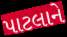
પાટલાને